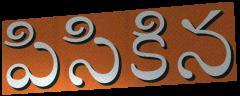
పిసికిన